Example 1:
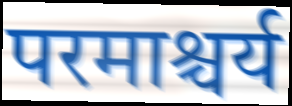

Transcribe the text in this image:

परमाश्चर्य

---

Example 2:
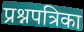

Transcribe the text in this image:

प्रश्नपत्रिका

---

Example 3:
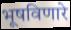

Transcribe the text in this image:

भूषविणारे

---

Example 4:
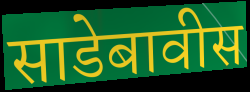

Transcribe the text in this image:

साडेबावीस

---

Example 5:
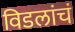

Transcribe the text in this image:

विडलांचं